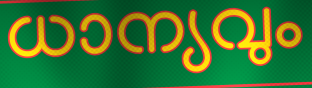
ധാന്യവും